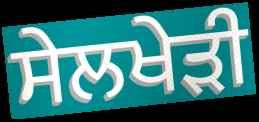
ਸੇਲਖੇੜੀ